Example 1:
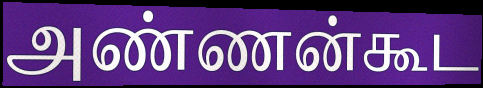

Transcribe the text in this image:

அண்ணன்கூட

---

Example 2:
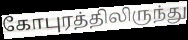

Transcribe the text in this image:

கோபுரத்திலிருந்து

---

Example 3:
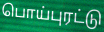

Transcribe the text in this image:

பொய்புரட்டு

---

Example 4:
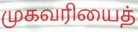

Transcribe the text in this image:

முகவரியைத்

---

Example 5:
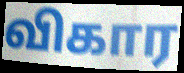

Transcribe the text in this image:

விகார